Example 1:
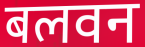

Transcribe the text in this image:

बलवन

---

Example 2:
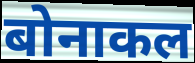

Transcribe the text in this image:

बोनाकल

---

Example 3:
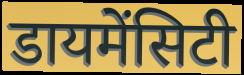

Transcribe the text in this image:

डायमेंसिटी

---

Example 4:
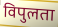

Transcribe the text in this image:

विपुलता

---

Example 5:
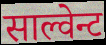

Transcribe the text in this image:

साल्वेन्ट